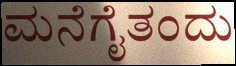
ಮನೆಗೈತಂದು